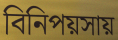
বিনিপয়সায়